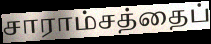
சாராம்சத்தைப்